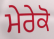
ਮੇਰੇਕੋ